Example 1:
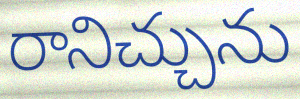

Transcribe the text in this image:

రానిచ్చును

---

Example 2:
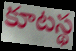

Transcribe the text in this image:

కూటస్థ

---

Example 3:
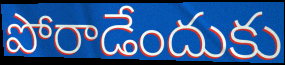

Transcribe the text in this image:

పోరాడేందుకు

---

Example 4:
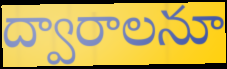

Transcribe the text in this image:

ద్వారాలనూ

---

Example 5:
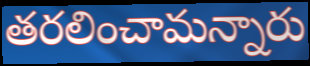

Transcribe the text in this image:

తరలించామన్నారు